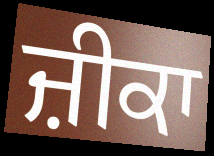
ਜ਼ੀਕਾ